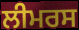
ਲੀਮਰਸ